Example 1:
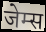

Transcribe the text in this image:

जेम्स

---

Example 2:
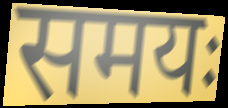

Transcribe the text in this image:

समयः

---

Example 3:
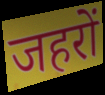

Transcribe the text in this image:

जहरों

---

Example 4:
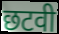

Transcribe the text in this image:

छटवी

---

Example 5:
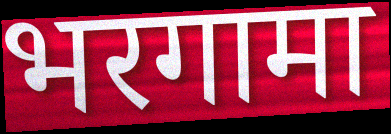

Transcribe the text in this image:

भरगामा